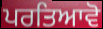
ਪਰਤਿਆਵੋ